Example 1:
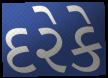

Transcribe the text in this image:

દરેકે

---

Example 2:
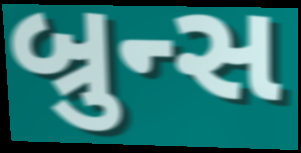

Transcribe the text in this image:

બ્રુન્સ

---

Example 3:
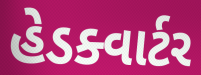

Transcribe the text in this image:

હેડક્વાર્ટર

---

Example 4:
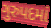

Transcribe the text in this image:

ગુરુપદમાં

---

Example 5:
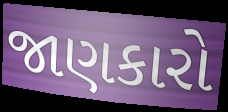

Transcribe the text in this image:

જાણકારો